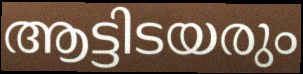
ആട്ടിടയരും